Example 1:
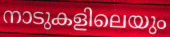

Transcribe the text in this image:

നാടുകളിലെയും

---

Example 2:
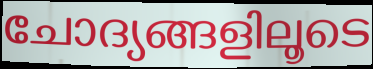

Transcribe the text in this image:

ചോദ്യങ്ങളിലൂടെ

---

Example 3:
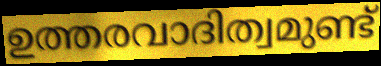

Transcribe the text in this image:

ഉത്തരവാദിത്വമുണ്ട്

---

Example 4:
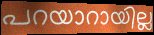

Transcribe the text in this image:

പറയാറായില്ല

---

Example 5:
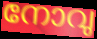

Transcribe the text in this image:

നോവു